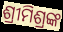
ଶ୍ରୀମିଶ୍ରଙ୍କ